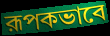
রূপকভাবে